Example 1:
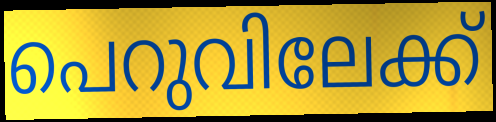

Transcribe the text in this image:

പെറുവിലേക്ക്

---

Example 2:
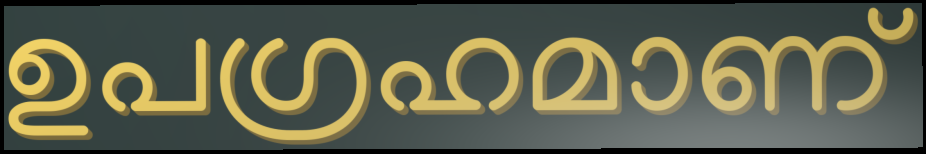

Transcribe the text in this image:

ഉപഗ്രഹമാണ്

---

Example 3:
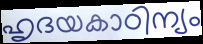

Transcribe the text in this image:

ഹൃദയകാഠിന്യം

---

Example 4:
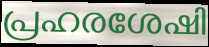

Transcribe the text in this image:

പ്രഹരശേഷി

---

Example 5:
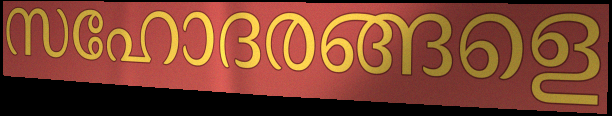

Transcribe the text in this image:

സഹോദരങ്ങളെ